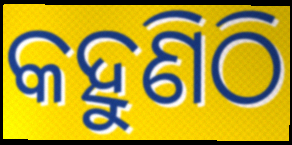
କହୁଣିଠି